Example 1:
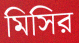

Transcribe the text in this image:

মিসির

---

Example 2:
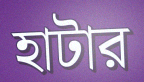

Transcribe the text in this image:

হাটার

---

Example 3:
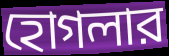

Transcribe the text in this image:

হোগলার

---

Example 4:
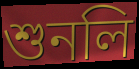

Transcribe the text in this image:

শুনলি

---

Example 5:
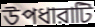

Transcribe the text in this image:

উপধারাটি